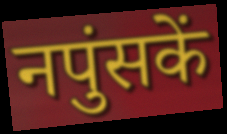
नपुंसकें